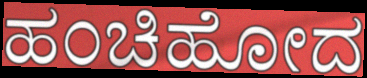
ಹಂಚಿಹೋದ